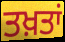
ਤਖ਼ਤਾਂ